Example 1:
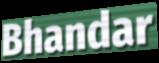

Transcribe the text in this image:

Bhandar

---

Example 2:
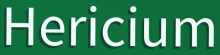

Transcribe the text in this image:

Hericium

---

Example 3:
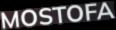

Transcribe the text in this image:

MOSTOFA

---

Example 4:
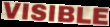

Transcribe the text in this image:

VISIBLE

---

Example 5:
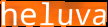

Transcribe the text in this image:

heluva